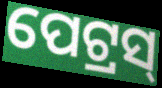
ପେଟ୍ରସ୍